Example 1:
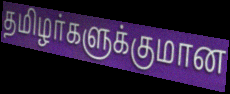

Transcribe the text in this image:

தமிழர்களுக்குமான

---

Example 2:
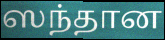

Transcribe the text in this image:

ஸந்தான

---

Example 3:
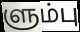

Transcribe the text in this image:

ளும்பு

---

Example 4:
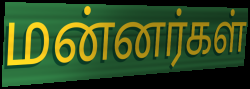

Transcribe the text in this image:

மன்னர்கள்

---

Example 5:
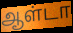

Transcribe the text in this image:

ஆள்டா